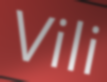
Vili